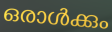
ഒരാൾക്കും